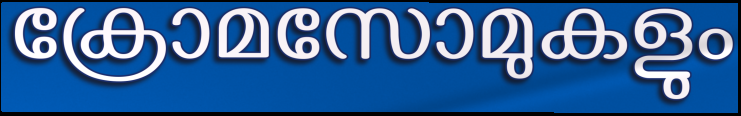
ക്രോമസോമുകളും